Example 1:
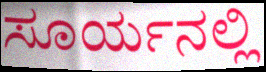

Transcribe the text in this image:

ಸೂರ್ಯನಲ್ಲಿ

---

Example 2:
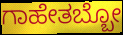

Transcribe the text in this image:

ಗಾಹೇತಬ್ಬೋ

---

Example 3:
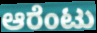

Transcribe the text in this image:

ಆರೆಂಟು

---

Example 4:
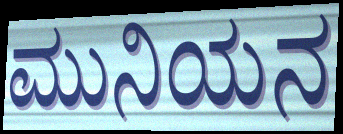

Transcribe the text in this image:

ಮುನಿಯನ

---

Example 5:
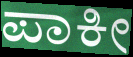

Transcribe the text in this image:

ಪಾಕೀ